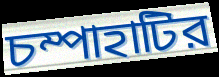
চম্পাহাটির